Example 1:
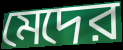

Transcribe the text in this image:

মেদের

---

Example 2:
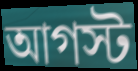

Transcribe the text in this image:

আগস্ট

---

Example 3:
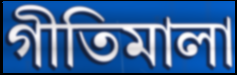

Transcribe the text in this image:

গীতিমালা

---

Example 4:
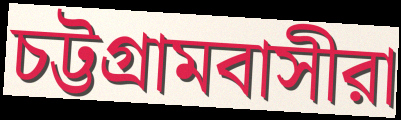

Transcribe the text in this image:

চট্টগ্রামবাসীরা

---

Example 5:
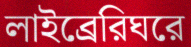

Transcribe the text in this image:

লাইব্রেরিঘরে